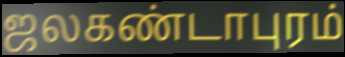
ஜலகண்டாபுரம்